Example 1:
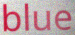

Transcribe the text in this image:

blue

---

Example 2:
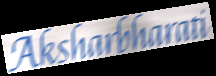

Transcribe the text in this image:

Aksharbharati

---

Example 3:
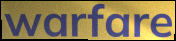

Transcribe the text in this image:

warfare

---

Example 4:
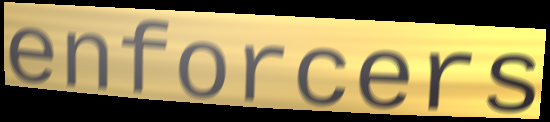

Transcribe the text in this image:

enforcers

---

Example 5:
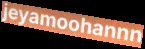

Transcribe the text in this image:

jeyamoohannn